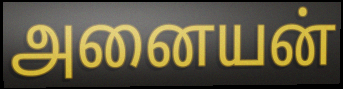
அனையன்